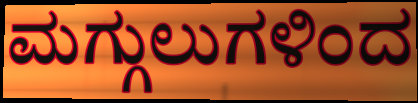
ಮಗ್ಗುಲುಗಳಿಂದ